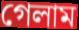
গেলাম